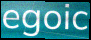
egoic